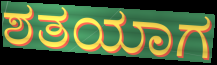
ಶತಯಾಗ